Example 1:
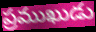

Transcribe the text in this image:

ప్రముఖుడు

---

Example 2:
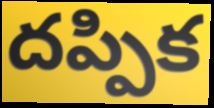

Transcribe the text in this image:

దప్పిక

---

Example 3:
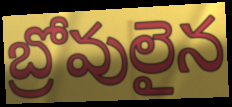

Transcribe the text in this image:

బ్రోవులైన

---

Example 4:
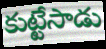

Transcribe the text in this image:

కుట్టేసాడు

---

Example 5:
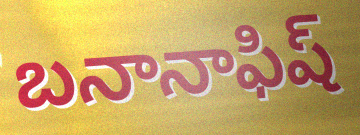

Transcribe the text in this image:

బనానాఫిష్